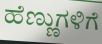
ಹೆಣ್ಣುಗಳಿಗೆ